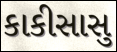
કાકીસાસુ